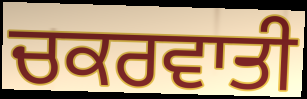
ਚਕਰਵਾਤੀ